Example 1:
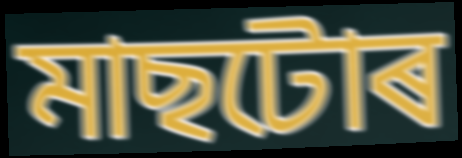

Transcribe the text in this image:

মাছটোৰ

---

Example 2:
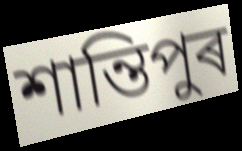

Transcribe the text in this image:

শান্তিপুৰ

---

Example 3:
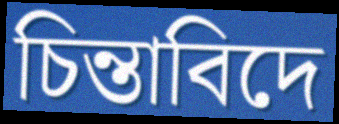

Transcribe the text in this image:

চিন্তাবিদে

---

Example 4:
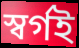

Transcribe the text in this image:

স্বৰ্গই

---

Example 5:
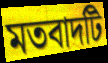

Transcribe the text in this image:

মতবাদটি